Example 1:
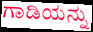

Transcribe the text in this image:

ಗಾಡಿಯನ್ನು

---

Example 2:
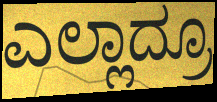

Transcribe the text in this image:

ಎಲ್ಲಾದ್ರೂ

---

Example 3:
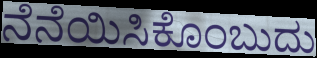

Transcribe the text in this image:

ನೆನೆಯಿಸಿಕೊಂಬುದು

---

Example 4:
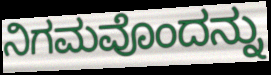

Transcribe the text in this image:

ನಿಗಮವೊಂದನ್ನು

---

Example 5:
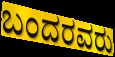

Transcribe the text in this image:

ಬಂದರವರು